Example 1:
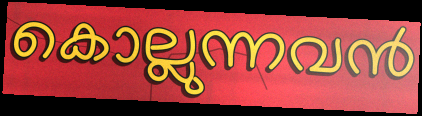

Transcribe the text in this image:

കൊല്ലുന്നവൻ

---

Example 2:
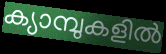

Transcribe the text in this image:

ക്യാമ്പുകളിൽ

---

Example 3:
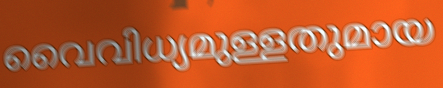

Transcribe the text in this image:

വൈവിധ്യമുള്ളതുമായ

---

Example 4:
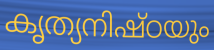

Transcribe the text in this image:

കൃത്യനിഷ്ഠയും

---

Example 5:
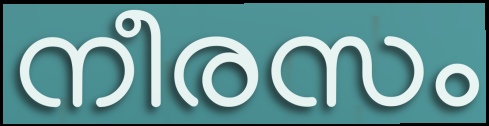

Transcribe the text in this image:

നീരസം